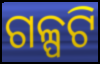
ଗଳ୍ପଟି